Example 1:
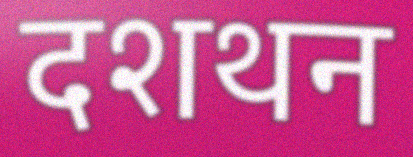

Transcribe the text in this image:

दशथन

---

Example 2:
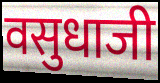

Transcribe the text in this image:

वसुधाजी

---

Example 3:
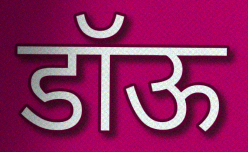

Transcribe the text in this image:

डॉऊ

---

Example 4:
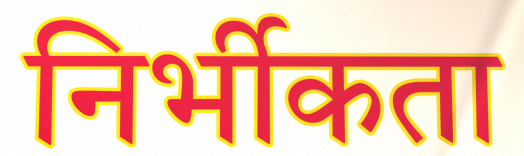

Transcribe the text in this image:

निर्भीकता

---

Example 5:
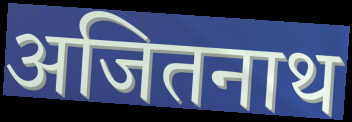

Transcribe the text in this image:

अजितनाथ